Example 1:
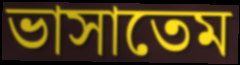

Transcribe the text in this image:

ভাসাতেম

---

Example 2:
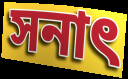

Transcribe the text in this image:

সনাৎ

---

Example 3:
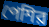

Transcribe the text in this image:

পেশির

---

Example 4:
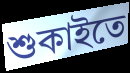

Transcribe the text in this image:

শুকাইতে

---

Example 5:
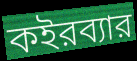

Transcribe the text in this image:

কইরব্যার